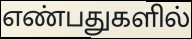
எண்பதுகளில்